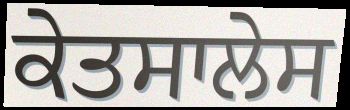
ਕੇਤਸਾਲੇਸ